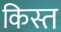
किस्त